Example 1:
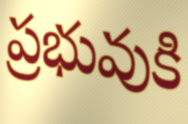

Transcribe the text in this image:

ప్రభువుకి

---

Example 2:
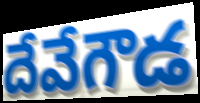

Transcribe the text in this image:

దేవేగౌడ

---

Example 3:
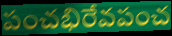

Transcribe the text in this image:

పంచభిరేవపంచ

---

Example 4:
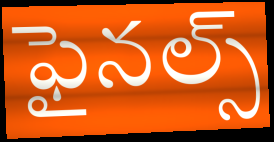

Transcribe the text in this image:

ఫైనల్స్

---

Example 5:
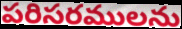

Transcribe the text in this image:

పరిసరములను